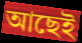
আছেই